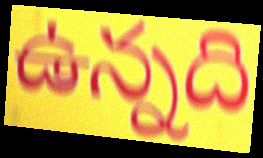
ఉన్నది